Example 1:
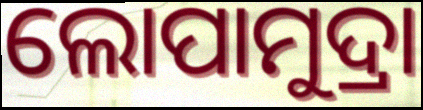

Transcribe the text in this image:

ଲୋପାମୁଦ୍ରା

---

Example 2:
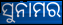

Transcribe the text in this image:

ସୁନାମର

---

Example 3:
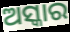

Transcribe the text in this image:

ଅସ୍କାର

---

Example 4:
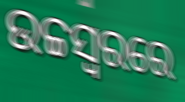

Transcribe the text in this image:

ଉଚ୍ଚସ୍ଵରରେ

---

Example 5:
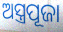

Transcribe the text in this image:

ଅସ୍ତ୍ରପୂଜା